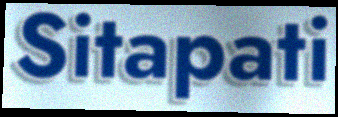
Sitapati